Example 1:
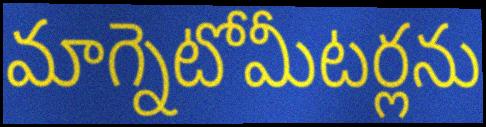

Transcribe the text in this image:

మాగ్నెటోమీటర్లను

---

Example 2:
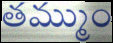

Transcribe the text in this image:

తమ్ముం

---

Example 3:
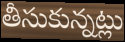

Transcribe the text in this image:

తీసుకున్నట్లు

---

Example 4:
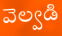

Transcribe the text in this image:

వెల్వడి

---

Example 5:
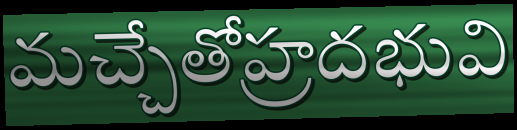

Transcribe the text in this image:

మచ్చేతోహ్రదభువి